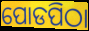
ପୋଡପିଠା